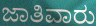
ಜಾತಿವಾರು